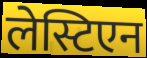
लेस्टिएन